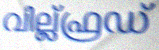
വില്ല്ഫ്രഡ്